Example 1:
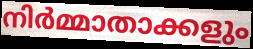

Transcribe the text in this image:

നിർമ്മാതാക്കളും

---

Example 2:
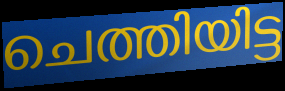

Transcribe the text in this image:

ചെത്തിയിട്ട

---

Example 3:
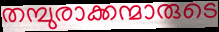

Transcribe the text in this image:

തമ്പുരാക്കന്മാരുടെ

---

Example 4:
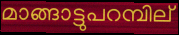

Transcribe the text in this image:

മാങ്ങാട്ടുപറമ്പില്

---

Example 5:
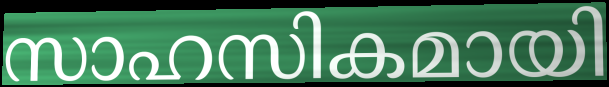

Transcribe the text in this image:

സാഹസികമായി